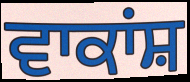
ਵਾਕਾਂਸ਼